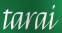
tarai